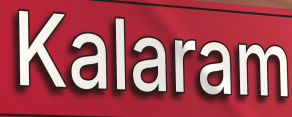
Kalaram